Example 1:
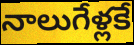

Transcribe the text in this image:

నాలుగేళ్లకే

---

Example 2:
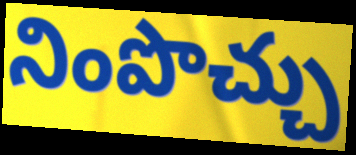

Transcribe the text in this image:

నింపొచ్చు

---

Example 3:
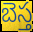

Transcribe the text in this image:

బెస్త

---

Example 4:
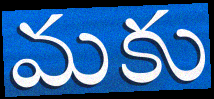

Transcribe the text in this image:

మకు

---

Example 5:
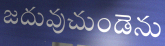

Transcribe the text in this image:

జదువుచుండెను